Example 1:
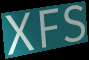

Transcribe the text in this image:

XFS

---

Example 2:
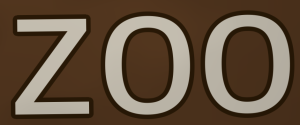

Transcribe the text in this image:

zoo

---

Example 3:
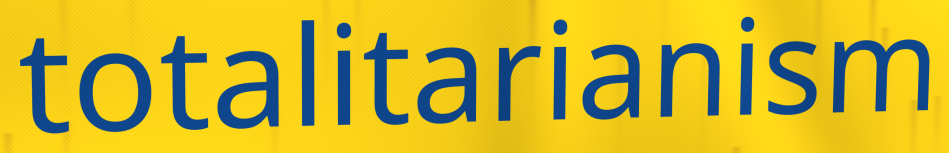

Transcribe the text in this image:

totalitarianism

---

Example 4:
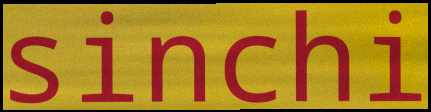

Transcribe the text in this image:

sinchi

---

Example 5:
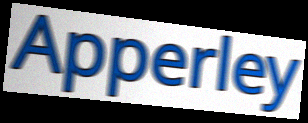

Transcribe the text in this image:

Apperley